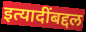
इत्यादींबद्दल